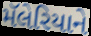
મૅલેરિયાને